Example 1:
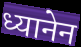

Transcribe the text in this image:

ध्यानेन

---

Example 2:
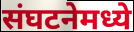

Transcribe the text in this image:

संघटनेमध्ये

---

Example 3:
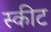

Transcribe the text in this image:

स्कीट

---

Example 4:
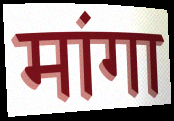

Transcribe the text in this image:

मांगा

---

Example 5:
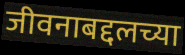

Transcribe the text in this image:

जीवनाबद्दलच्या